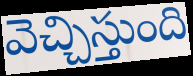
వెచ్చిస్తుంది